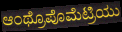
ಆಂಥ್ರೊಪೊಮೆಟ್ರಿಯು